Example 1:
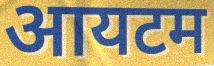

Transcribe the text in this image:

आयटम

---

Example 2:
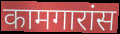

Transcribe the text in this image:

कामगारांस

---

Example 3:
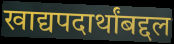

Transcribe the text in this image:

खाद्यपदार्थांबद्दल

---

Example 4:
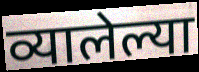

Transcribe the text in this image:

व्यालेल्या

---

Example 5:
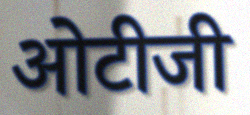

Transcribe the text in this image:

ओटीजी